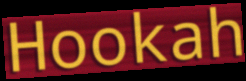
Hookah